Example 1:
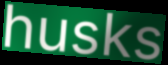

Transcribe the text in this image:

husks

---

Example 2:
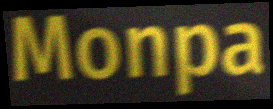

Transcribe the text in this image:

Monpa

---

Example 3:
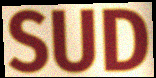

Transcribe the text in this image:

SUD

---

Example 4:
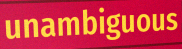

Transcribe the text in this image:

unambiguous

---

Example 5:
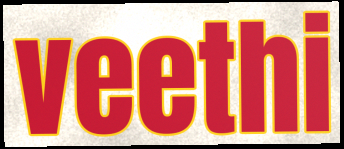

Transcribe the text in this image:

veethi